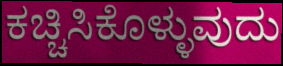
ಕಚ್ಚಿಸಿಕೊಳ್ಳುವುದು